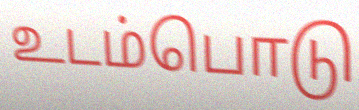
உடம்பொடு